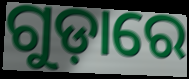
ଗୁଡ଼ାରେ